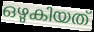
ഒഴുകിയത്